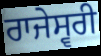
ਰਾਜੇਸ੍ਵਰੀ